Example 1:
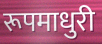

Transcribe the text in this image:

रूपमाधुरी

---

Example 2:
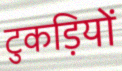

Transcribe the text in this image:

टुकड़ियों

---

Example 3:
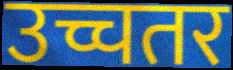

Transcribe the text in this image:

उच्चतर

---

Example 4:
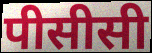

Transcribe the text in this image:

पीसीसी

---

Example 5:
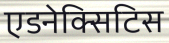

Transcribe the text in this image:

एडनेक्सिटिस